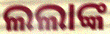
ଲଲାଙ୍କ